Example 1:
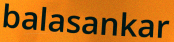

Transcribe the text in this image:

balasankar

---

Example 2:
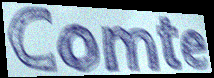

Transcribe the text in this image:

Comte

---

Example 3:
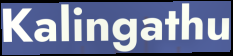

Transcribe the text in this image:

Kalingathu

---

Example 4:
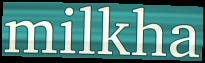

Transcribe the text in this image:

milkha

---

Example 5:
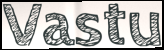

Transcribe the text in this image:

Vastu